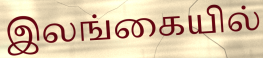
இலங்கையில்